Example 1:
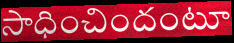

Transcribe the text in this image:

సాధించిందంటూ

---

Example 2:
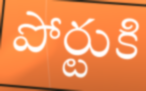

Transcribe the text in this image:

పోర్టుకి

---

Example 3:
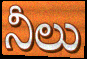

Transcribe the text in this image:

నీలు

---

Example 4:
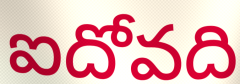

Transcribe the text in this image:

ఐదోవది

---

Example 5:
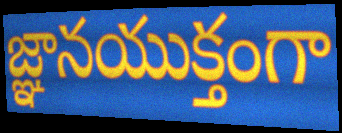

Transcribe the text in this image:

జ్ఞానయుక్తంగా